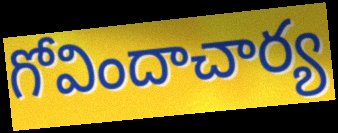
గోవిందాచార్య